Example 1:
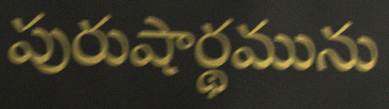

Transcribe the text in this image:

పురుషార్థమును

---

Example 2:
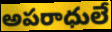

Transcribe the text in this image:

అపరాధులే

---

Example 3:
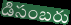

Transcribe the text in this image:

డిసంబరు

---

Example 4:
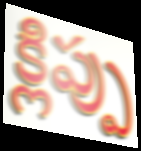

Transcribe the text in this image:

క్లిప్పు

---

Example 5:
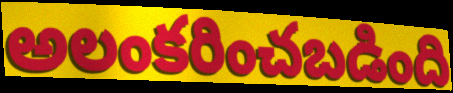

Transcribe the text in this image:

అలంకరించబడింది